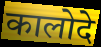
कालोदे